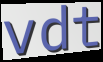
vdt